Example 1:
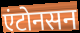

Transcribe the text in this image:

एंटोनसन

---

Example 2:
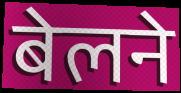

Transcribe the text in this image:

बेलने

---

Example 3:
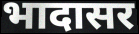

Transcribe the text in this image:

भादासर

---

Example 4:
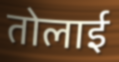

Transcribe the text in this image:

तोलाई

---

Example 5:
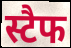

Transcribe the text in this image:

स्टैफ